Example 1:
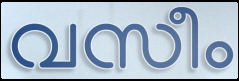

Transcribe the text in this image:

വസീം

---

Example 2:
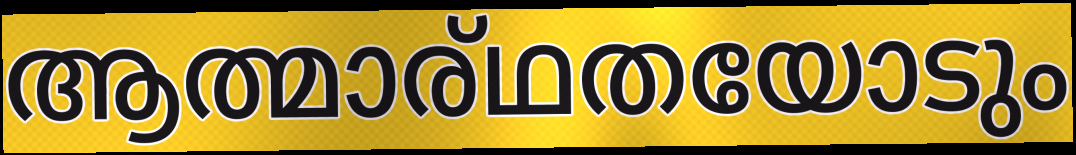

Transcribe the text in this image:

ആത്മാര്ഥതയോടും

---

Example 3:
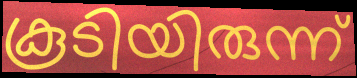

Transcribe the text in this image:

കൂടിയിരുന്ന്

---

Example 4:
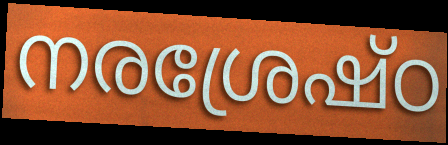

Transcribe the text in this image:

നരശ്രേഷ്ഠ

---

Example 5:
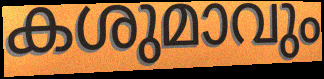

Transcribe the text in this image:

കശുമാവും